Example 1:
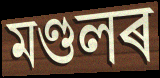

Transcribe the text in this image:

মণ্ডলৰ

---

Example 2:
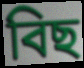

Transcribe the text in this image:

বিছ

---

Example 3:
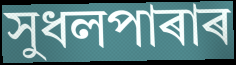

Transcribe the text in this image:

সুধলপাৰাৰ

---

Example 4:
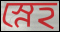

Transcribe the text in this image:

স্নেহ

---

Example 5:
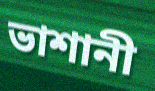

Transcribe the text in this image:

ভাশানী